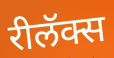
रीलॅक्स